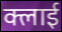
क्लाई